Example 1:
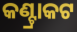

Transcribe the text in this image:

କଣ୍ଟ୍ରାକଟ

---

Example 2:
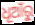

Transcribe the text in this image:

ଧୂଆଁରୁ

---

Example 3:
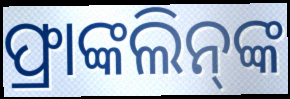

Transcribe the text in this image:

ଫ୍ରାଙ୍କଲିନ୍‌ଙ୍କ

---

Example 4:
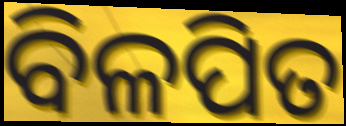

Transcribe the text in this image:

ବିଳପିତ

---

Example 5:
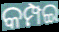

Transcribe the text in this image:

କମ୍ପଇ